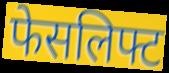
फेसलिफ्ट